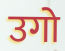
उगो